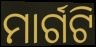
ମାର୍ଗଟି